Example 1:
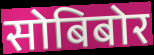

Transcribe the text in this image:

सोबिबोर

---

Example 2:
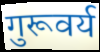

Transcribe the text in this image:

गुरूवर्य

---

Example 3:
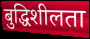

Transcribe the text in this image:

बुद्धिशीलता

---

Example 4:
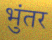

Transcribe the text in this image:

भुंतर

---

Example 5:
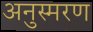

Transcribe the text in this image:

अनुस्मरण